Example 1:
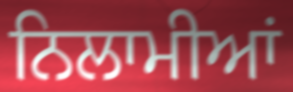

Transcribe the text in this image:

ਨਿਲਾਮੀਆਂ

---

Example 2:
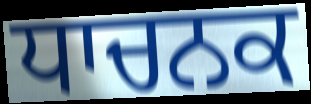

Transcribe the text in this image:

ਧਾਚਨਕ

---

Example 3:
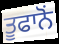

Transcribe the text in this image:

ਤੂਫਾਨੋਂ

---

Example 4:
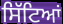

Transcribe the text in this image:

ਸਿੱਟਿਆਂ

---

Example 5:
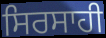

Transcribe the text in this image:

ਸਿਰਸਾਹੀ